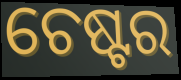
ଚେଷ୍ଟର